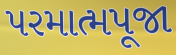
પરમાત્મપૂજા